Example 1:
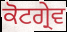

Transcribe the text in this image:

ਕੋਟਗ੍ਰੇਵ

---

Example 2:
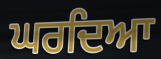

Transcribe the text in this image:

ਘਰਦਿਆ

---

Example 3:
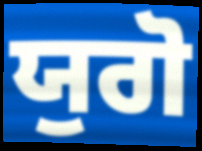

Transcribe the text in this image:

ਯੁਗੋ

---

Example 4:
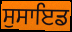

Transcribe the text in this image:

ਸੁਸਾਇਡ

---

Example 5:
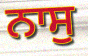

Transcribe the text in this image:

ਨਾਸੁ